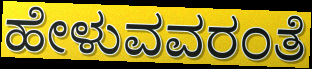
ಹೇಳುವವರಂತೆ